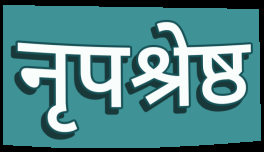
नृपश्रेष्ठ